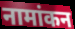
नामांकन